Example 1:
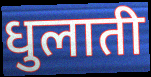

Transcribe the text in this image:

धुलाती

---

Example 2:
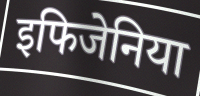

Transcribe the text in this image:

इफिजेनिया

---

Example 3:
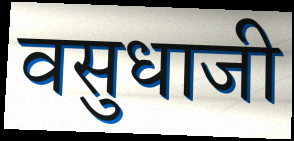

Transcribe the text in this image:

वसुधाजी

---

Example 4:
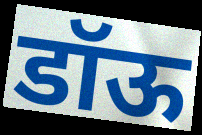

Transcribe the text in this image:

डॉऊ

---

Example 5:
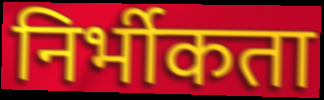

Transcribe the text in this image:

निर्भीकता